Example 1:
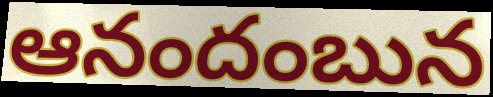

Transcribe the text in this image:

ఆనందంబున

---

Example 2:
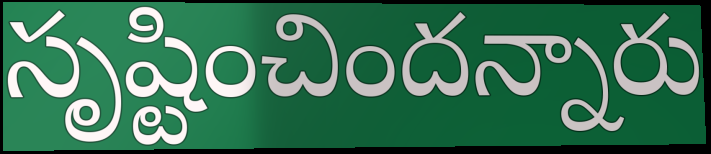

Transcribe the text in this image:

సృష్టించిందన్నారు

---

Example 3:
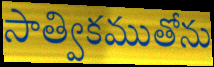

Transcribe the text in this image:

సాత్వికముతోను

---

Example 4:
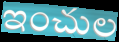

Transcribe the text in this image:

ఇంచుల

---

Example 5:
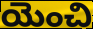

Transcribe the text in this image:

యెంచి